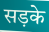
सड़के